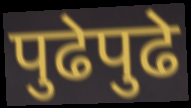
पुढेपुढे